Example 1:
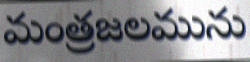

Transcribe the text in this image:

మంత్రజలమును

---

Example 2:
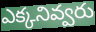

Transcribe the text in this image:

ఎక్కనివ్వరు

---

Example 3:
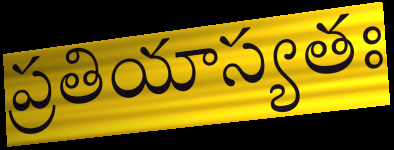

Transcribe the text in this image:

ప్రతియాస్యతః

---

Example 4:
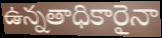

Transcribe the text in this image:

ఉన్నతాధికారైనా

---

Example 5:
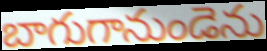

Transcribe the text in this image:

బాగుగానుండెను